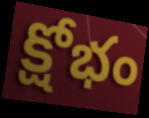
క్షోభం